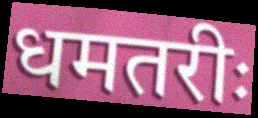
धमतरीः